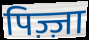
पिज़्ज़ा